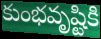
కుంభవృష్టికి